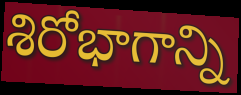
శిరోభాగాన్ని